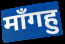
माँगहु